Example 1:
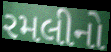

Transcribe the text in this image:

રમલીનો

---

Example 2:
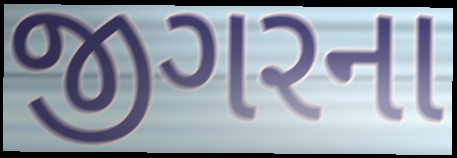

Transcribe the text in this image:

જીગરના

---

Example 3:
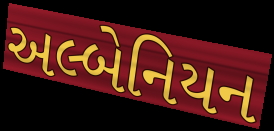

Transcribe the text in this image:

અલ્બેનિયન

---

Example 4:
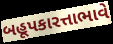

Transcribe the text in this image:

બહૂપકારત્તાભાવે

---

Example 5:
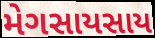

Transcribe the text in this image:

મેગસાયસાય